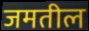
जमतील